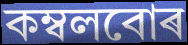
কম্বলবোৰ